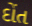
દોંત